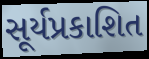
સૂર્યપ્રકાશિત